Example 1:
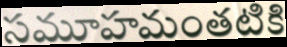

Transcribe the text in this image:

సమూహమంతటికి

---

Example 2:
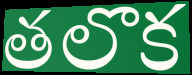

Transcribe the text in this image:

తలొక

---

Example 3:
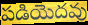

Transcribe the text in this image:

పడియెదవు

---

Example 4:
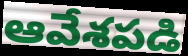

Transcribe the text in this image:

ఆవేశపడి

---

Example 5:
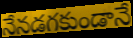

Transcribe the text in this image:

నేనడగకుండానే